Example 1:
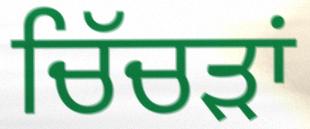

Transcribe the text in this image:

ਚਿੱਚੜਾਂ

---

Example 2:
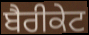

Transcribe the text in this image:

ਬੈਰੀਕੇਟ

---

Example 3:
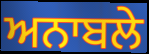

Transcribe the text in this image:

ਅਨਾਬਲੇ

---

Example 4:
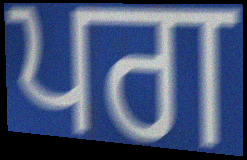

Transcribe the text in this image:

ਪਗ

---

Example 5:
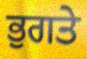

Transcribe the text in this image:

ਭੁਗਤੇ